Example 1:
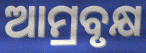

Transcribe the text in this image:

ଆମ୍ରବୃକ୍ଷ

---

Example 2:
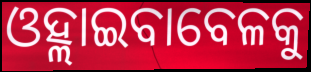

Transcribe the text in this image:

ଓହ୍ଲାଇବାବେଳକୁ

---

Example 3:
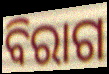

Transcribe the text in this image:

ବିରାଗ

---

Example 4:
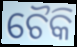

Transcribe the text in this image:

ଚୈକି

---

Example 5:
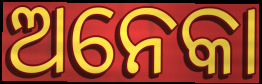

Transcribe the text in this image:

ଅନେକା